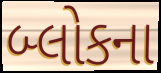
બ્લોકના